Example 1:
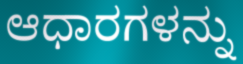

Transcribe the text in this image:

ಆಧಾರಗಳನ್ನು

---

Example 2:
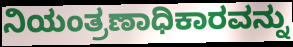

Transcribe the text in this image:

ನಿಯಂತ್ರಣಾಧಿಕಾರವನ್ನು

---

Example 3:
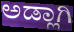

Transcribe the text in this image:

ಅಡ್ಲಾಗಿ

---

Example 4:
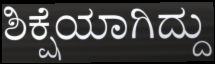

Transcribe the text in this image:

ಶಿಕ್ಷೆಯಾಗಿದ್ದು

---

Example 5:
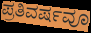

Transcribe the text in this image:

ಪ್ರತಿವರ್ಷವೂ